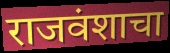
राजवंशाचा